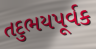
તદુભયપૂર્વક